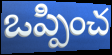
ఒప్పించ